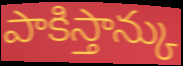
పాకిస్తాన్కు